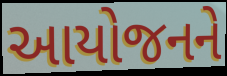
આયોજનને